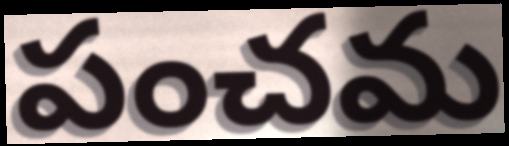
పంచమ